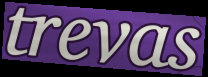
trevas